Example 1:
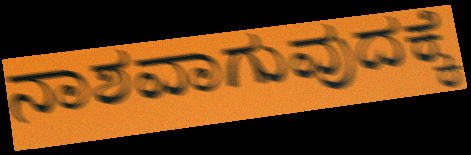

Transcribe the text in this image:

ನಾಶವಾಗುವುದಕ್ಕೆ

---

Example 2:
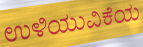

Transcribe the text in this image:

ಉಳಿಯುವಿಕೆಯ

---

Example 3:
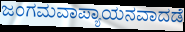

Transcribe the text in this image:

ಜಂಗಮವಾಪ್ಯಾಯನವಾದಡೆ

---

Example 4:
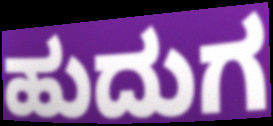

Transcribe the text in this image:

ಹುದುಗ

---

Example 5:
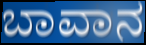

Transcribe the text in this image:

ಬಾವಾನ